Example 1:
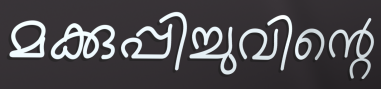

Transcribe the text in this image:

മക്കുപ്പിച്ചുവിന്റെ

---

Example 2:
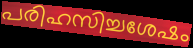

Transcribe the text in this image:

പരിഹസിച്ചശേഷം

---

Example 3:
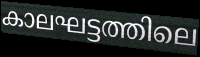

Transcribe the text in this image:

കാലഘട്ടത്തിലെ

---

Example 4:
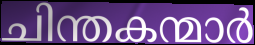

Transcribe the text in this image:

ചിന്തകന്മാർ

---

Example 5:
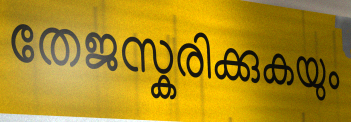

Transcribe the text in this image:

തേജസ്കരിക്കുകയും